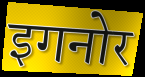
इगनोर